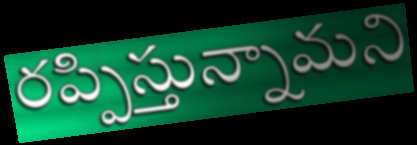
రప్పిస్తున్నామని